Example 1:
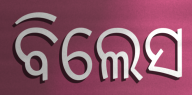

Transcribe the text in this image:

ବିଲେସ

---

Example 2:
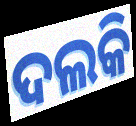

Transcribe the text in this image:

ଦଲକି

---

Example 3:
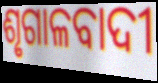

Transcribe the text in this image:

ଶୃଗାଳବାଦୀ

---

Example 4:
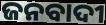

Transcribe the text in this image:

ଜନବାଦୀ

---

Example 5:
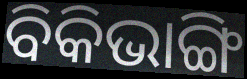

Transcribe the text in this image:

ବିକିଭାଙ୍ଗି